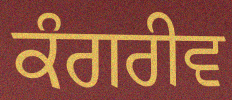
ਕੰਗਰੀਵ